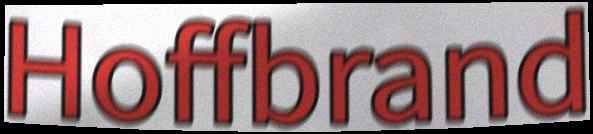
Hoffbrand